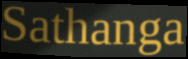
Sathanga